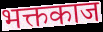
भक्तकाज